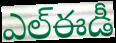
ఎల్ఈడీ